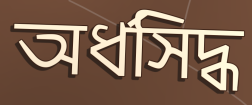
অর্ধসিদ্ধ